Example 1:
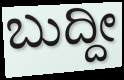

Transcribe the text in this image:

ಬುದ್ದೀ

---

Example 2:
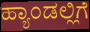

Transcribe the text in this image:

ಹ್ಯಾಂಡಲ್ಲಿಗೆ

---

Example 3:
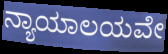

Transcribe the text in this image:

ನ್ಯಾಯಾಲಯವೇ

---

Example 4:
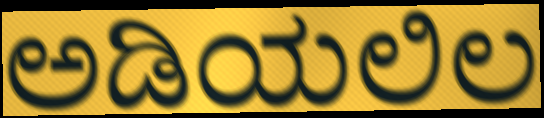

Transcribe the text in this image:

ಅಡಿಯಲಿಲ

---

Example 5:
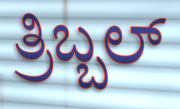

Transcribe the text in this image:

ತ್ರಿಬ್ಬಲ್